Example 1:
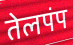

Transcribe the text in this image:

तेलपंप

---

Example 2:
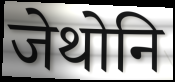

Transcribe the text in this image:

जेथोनि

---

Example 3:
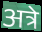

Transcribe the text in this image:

अत्रे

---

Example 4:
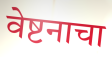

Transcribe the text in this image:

वेष्टनाचा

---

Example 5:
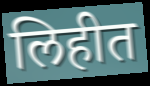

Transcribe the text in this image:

लिहीत